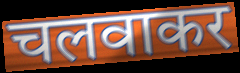
चलवाकर